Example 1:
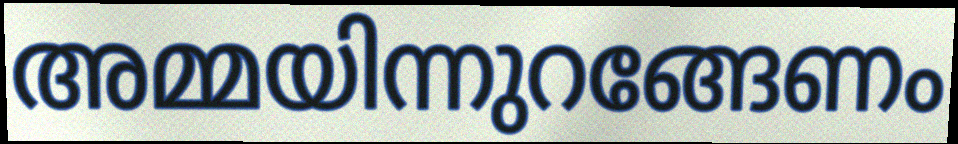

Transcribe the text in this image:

അമ്മയിന്നുറങ്ങേണം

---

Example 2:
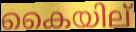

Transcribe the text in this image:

കൈയില്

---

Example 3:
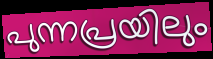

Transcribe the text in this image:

പുന്നപ്രയിലും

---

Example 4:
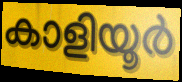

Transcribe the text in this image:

കാളിയൂർ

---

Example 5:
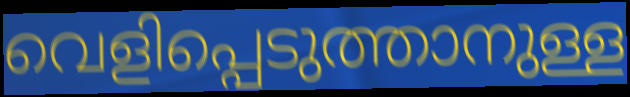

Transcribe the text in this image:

വെളിപ്പെടുത്താനുള്ള